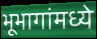
भूभागांमध्ये